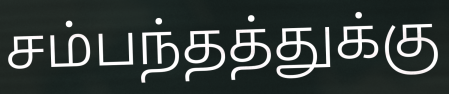
சம்பந்தத்துக்கு